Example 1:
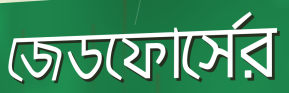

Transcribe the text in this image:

জেডফোর্সের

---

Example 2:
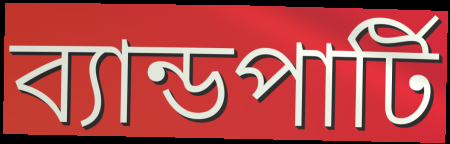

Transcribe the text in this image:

ব্যান্ডপার্টি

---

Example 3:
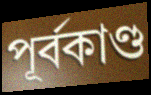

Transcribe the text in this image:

পূর্বকাণ্ড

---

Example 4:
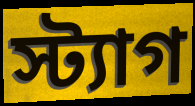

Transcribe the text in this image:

স্ট্যাগ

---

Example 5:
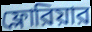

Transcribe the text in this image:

ফ্লোরিয়ার